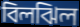
বিলঝিল